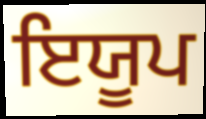
ਇਯੂਪ